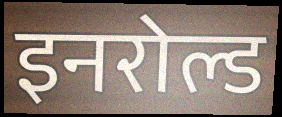
इनरोल्ड